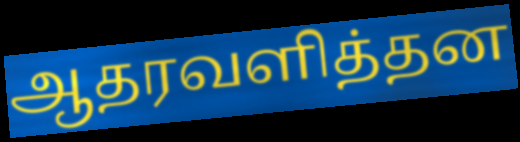
ஆதரவளித்தன